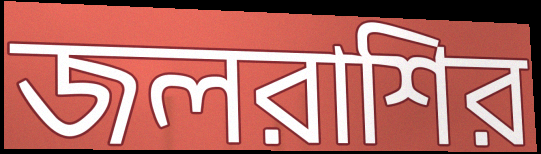
জলরাশির